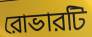
রোভারটি